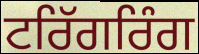
ਟਰਿੱਗਰਿੰਗ